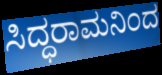
ಸಿದ್ಧರಾಮನಿಂದ